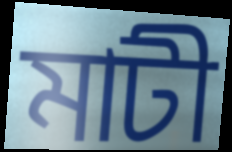
মাটী